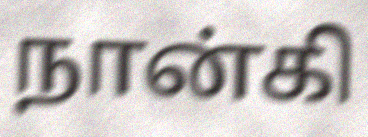
நான்கி